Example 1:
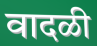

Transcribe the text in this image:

वादळी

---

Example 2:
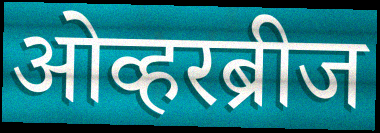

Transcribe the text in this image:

ओव्हरब्रीज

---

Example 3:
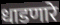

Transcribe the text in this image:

धाडणारे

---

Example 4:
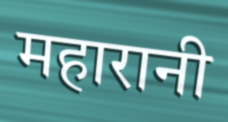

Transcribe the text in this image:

महारानी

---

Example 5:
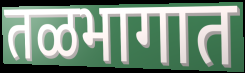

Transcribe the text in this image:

तळभागात